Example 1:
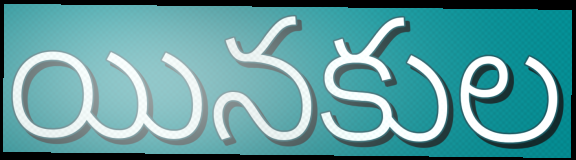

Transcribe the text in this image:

యినకుల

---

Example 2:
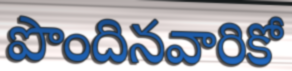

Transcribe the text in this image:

పొందినవారికో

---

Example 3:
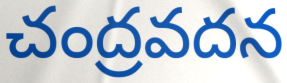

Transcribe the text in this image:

చంద్రవదన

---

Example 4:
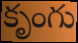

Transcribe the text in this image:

కృంగు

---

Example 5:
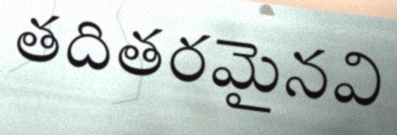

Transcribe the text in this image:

తదితరమైనవి